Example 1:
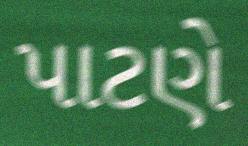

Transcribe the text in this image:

પાટણે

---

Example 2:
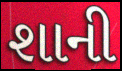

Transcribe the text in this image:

શાની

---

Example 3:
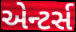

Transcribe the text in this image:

એન્ટર્સ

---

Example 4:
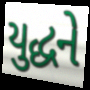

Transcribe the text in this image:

યુદ્ધને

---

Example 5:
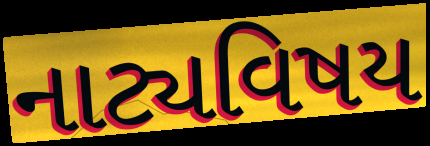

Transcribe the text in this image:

નાટ્યવિષય